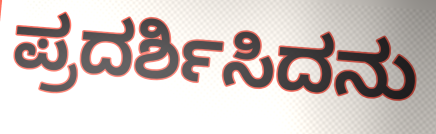
ಪ್ರದರ್ಶಿಸಿದನು